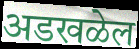
अडखळेल